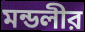
মন্ডলীর